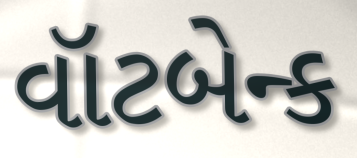
વૉટબેન્ક